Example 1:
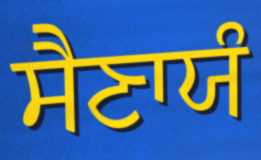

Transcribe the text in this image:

ਸੈਣਾਯੰ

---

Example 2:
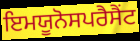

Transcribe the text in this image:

ਇਮਯੂਨੋਸਪਰੈਸੈਂਟ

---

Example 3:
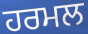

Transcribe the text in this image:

ਹਰਮਲ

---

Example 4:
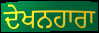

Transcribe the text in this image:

ਦੇਖਨਹਾਰਾ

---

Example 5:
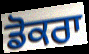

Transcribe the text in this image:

ਡੋਕਰਾ